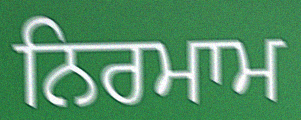
ਨਿਰਮਾਮ